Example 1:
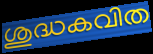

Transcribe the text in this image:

ശുദ്ധകവിത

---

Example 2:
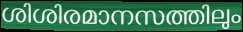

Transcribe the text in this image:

ശിശിരമാനസത്തിലും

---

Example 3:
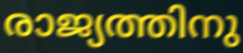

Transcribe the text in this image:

രാജ്യത്തിനു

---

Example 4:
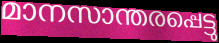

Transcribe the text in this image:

മാനസാന്തരപ്പെട്ടു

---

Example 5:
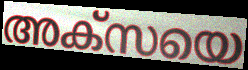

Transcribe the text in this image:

അക്സയെ